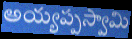
అయ్యప్పస్వామి